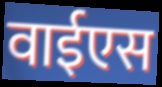
वाईएस